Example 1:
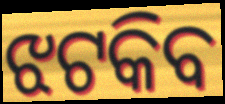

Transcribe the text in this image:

ଝଟକିବ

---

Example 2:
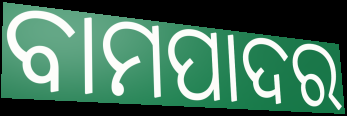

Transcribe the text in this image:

ବାମପାଦର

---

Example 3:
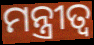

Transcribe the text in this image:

ମନ୍ତ୍ରୀତ୍ୱ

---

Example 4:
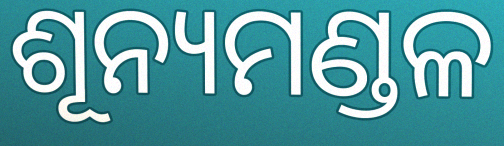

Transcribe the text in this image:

ଶୂନ୍ୟମଣ୍ଡଳ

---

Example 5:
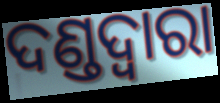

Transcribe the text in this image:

ଦଣ୍ଡଦ୍ବାରା